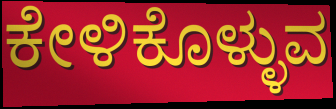
ಕೇಳಿಕೊಳ್ಳುವ